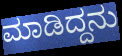
ಮಾಡಿದ್ದನು